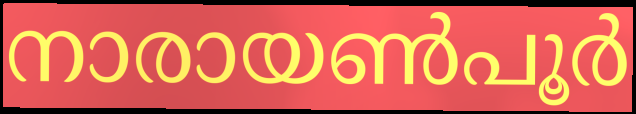
നാരായൺപൂർ